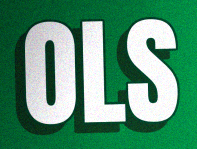
OLS